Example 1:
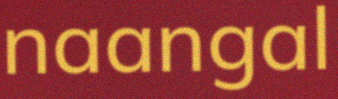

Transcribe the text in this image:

naangal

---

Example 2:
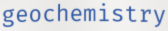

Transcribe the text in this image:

geochemistry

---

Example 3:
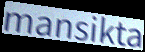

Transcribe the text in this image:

mansikta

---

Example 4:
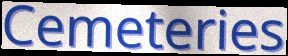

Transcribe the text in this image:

Cemeteries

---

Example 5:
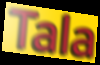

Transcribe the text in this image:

Tala